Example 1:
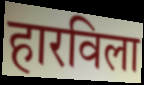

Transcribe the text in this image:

हारविला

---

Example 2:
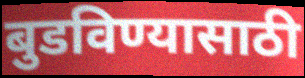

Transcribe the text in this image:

बुडविण्यासाठी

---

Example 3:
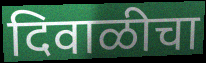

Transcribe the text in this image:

दिवाळीचा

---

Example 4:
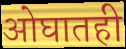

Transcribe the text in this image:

ओघातही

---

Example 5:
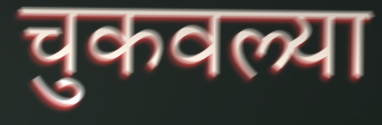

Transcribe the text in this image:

चुकवल्या